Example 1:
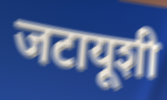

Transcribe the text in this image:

जटायूशी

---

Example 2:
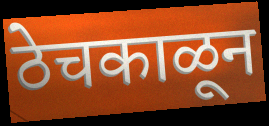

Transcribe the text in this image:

ठेचकाळून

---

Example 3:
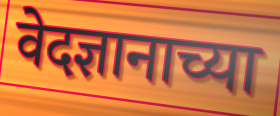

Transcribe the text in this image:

वेदज्ञानाच्या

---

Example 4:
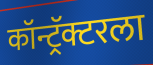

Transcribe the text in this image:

कॉन्ट्रॅक्टरला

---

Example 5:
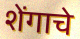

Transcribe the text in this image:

शेंगाचे